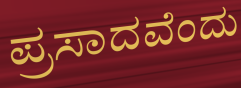
ಪ್ರಸಾದವೆಂದು